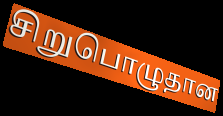
சிறுபொழுதான